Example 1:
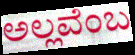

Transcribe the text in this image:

ಅಲ್ಲವೆಂಬ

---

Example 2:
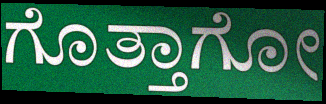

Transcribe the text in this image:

ಗೊತ್ತಾಗೋ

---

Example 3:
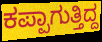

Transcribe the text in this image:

ಕಪ್ಪಾಗುತ್ತಿದ್ದ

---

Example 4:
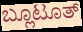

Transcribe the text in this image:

ಬ್ಲೂಟೂತ್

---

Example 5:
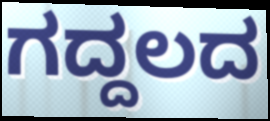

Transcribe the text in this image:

ಗದ್ದಲದ